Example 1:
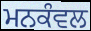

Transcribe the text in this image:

ਮਨਕੰਵਲ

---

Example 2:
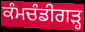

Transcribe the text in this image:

ਕੰਮਚੰਡੀਗੜ੍ਹ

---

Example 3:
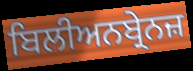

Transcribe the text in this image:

ਬਿਲੀਅਨਬ੍ਰੇਨਜ਼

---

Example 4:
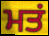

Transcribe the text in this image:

ਮਤਂ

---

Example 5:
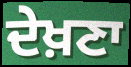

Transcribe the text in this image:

ਦੇਖ਼ਣਾ